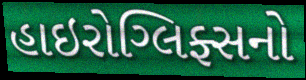
હાઇરોગ્લિફ્સનો